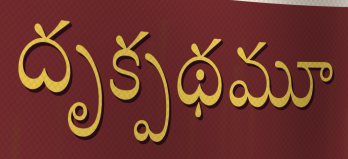
దృక్పథమూ